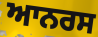
ਆਨਰਸ